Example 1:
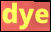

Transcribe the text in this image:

dye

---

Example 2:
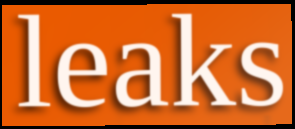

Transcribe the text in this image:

leaks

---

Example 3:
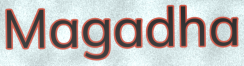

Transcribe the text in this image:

Magadha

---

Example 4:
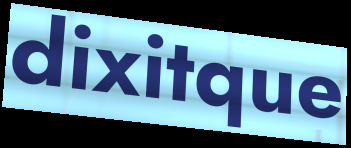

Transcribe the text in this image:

dixitque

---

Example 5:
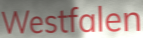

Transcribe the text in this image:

Westfalen